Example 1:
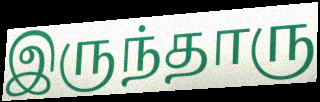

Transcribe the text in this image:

இருந்தாரு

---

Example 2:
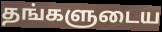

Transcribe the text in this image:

தங்களுடைய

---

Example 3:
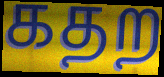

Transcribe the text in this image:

கதற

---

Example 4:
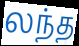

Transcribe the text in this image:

லந்த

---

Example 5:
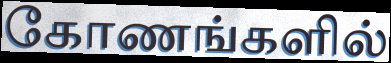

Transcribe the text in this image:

கோணங்களில்